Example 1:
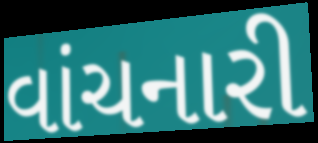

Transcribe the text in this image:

વાંચનારી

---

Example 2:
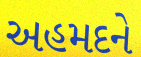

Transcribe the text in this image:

અહમદને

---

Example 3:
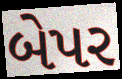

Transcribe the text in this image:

બેપર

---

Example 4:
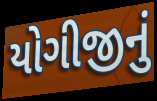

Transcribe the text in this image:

યોગીજીનું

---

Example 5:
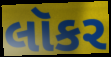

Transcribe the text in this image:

લૉકર